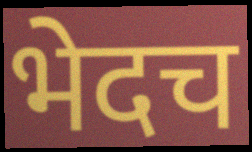
भेदच